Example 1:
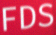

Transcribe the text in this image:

FDS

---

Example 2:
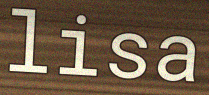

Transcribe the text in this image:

lisa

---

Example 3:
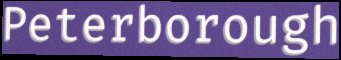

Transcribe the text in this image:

Peterborough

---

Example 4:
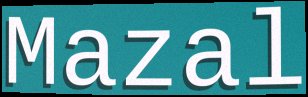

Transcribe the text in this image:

Mazal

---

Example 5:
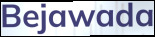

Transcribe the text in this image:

Bejawada